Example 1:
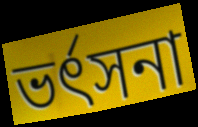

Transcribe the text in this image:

ভৰ্ৎসনা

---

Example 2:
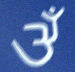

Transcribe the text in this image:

ঔঁ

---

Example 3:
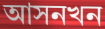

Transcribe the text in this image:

আসনখন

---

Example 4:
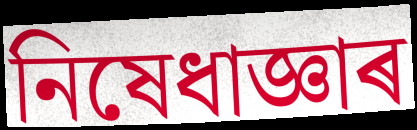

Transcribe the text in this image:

নিষেধাজ্ঞাৰ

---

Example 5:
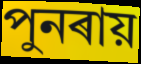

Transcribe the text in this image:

পুনৰায়